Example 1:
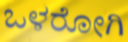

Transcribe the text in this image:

ಒಳರೋಗಿ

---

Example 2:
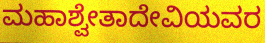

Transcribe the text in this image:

ಮಹಾಶ್ವೇತಾದೇವಿಯವರ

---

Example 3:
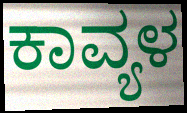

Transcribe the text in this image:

ಕಾವ್ಯಳ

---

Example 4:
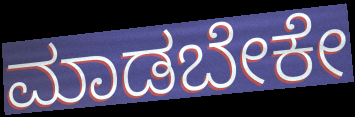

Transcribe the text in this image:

ಮಾಡಬೇಕೇ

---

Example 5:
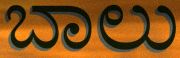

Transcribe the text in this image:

ಬಾಲು